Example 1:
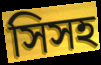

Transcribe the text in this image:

সিসহ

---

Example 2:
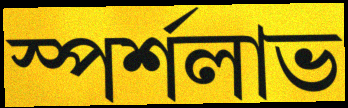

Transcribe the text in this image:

স্পর্শলাভ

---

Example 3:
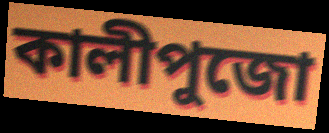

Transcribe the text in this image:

কালীপুজো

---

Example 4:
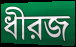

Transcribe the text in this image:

ধীরজ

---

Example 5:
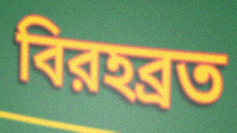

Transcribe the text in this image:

বিরহব্রত